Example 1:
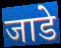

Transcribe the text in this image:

जाडे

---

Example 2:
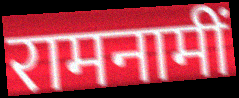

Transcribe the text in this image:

रामनामीं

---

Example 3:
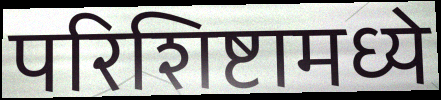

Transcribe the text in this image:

परिशिष्टामध्ये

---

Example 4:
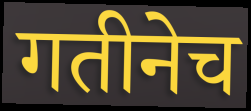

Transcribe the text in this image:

गतीनेच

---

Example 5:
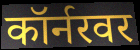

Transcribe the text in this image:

कॉर्नरवर